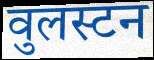
वुलस्टन